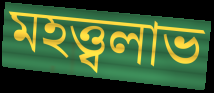
মহত্ত্বলাভ